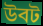
উবট